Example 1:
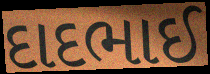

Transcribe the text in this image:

દાદભાઈ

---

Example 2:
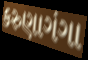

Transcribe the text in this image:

કરુણાગંગા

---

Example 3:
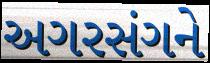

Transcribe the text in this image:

અગરસંગને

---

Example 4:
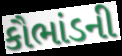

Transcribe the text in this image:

કૌભાંડની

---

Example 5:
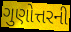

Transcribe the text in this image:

ગુણોત્તરની